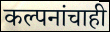
कल्पनांचाही